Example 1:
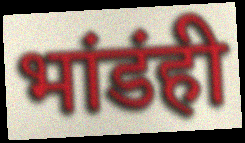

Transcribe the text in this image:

भांडंही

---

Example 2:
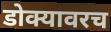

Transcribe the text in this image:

डोक्यावरच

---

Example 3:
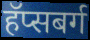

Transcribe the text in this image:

हॅप्सबर्ग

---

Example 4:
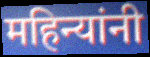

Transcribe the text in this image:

महिन्यांनी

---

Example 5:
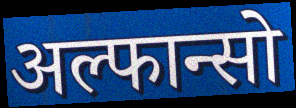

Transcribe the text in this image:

अल्फान्सो